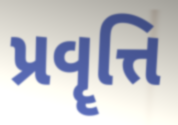
પ્રવૄત્તિ